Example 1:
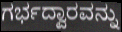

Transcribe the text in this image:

ಗರ್ಭದ್ವಾರವನ್ನು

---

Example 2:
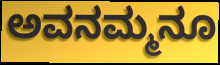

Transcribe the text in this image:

ಅವನಮ್ಮನೂ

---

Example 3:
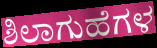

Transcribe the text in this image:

ಶಿಲಾಗುಹೆಗಳ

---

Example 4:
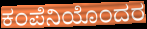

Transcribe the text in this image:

ಕಂಪೆನಿಯೊಂದರ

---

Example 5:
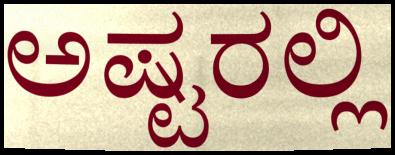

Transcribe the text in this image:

ಅಷ್ಟರಲ್ಲಿ